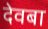
देवबा